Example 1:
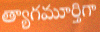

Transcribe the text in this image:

త్యాగమూర్తిగా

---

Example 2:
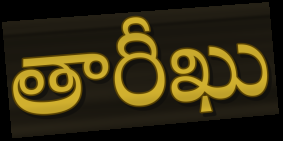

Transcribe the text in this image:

తారీఖు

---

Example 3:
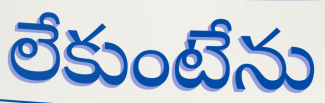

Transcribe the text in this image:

లేకుంటేను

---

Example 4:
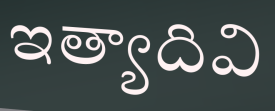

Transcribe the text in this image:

ఇత్యాదివి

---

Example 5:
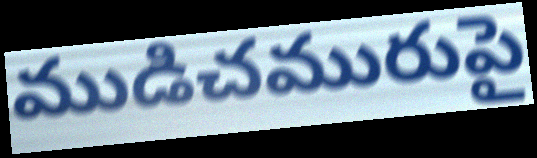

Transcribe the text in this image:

ముడిచమురుపై